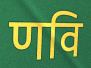
णवि